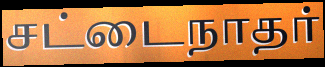
சட்டைநாதர்